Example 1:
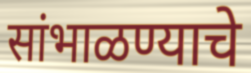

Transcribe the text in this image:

सांभाळण्याचे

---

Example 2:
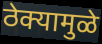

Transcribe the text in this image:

ठेक्यामुळे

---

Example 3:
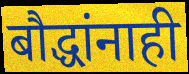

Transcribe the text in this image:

बौद्धांनाही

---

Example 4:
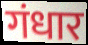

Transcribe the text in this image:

गंधार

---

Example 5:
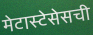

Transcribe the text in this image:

मेटास्टेसेसची